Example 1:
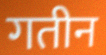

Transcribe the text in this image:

गतीन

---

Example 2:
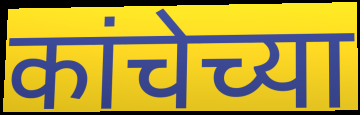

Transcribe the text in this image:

कांचेच्या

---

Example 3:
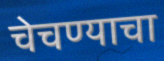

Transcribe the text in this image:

चेचण्याचा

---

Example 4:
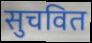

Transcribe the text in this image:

सुचवित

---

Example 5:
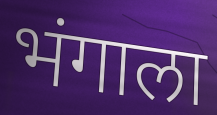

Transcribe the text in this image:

भंगाला